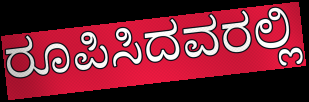
ರೂಪಿಸಿದವರಲ್ಲಿ